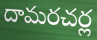
దామరచర్ల